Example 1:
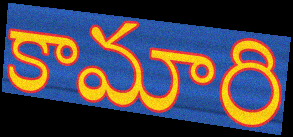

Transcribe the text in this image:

కామారి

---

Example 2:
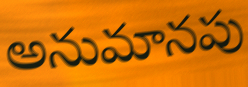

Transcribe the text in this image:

అనుమానపు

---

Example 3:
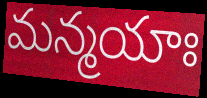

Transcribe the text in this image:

మన్మయాః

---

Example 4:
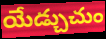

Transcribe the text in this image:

యేడ్చుచుం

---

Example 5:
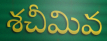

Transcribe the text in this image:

శచీమివ